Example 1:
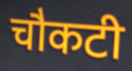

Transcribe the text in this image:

चौकटी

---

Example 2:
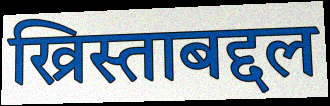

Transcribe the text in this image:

ख्रिस्ताबद्दल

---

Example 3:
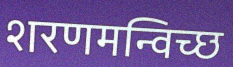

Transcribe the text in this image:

शरणमन्विच्छ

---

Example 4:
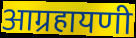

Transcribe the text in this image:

आग्रहायणी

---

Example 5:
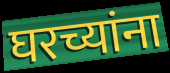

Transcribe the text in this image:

घरच्यांना